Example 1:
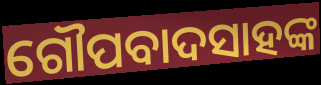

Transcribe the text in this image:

ଗୌପବାଦସାହଙ୍କ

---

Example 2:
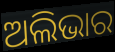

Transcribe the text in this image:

ଅଲିଭାର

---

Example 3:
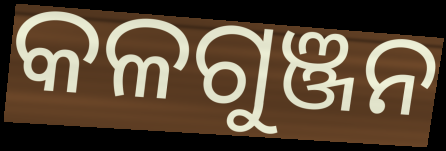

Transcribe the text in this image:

କଳଗୁଞ୍ଜନ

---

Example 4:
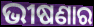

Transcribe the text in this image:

ଭୀଷଣାର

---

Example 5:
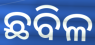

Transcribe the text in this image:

ଛବିଳ